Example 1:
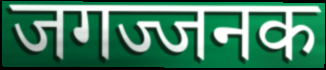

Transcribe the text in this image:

जगज्जनक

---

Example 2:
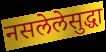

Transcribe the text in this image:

नसलेलेसुद्धा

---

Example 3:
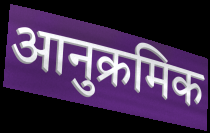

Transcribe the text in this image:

आनुक्रमिक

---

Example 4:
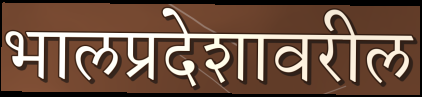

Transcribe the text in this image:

भालप्रदेशावरील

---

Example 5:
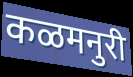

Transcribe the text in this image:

कळमनुरी